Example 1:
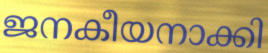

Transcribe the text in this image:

ജനകീയനാക്കി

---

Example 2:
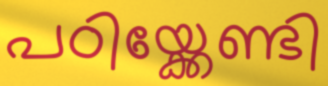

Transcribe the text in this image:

പഠിയ്ക്കേണ്ടി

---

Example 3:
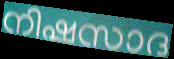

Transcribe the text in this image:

നിഷസാദ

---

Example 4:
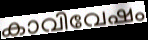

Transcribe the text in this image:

കാവിവേഷം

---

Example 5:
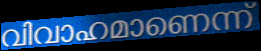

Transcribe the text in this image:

വിവാഹമാണെന്ന്